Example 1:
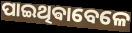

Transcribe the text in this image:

ପାଇଥିଵାବେଳେ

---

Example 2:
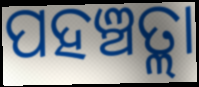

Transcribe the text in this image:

ପହଞ୍ଚତ୍ଲା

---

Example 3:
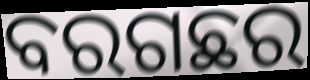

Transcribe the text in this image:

ବରଗଛର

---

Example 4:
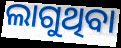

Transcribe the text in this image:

ଲାଗୁଥିବା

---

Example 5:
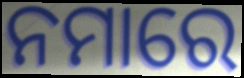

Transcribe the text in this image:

ନମାରେ